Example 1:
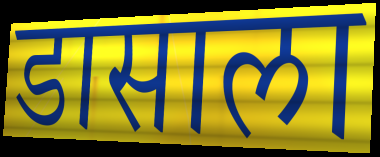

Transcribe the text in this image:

डासाला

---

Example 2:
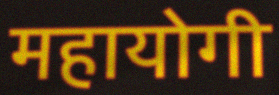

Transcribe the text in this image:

महायोगी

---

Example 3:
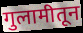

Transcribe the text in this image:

गुलामीतून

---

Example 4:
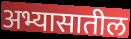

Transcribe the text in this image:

अभ्यासातील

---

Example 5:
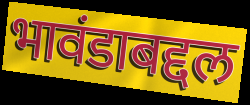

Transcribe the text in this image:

भावंडाबद्दल